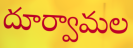
దూర్వామల